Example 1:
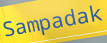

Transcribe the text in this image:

Sampadak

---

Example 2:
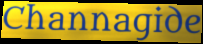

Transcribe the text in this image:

Channagide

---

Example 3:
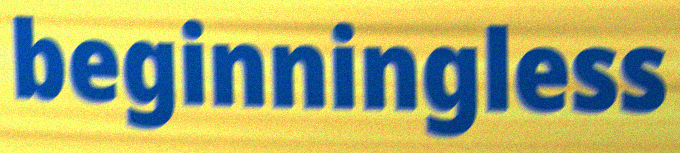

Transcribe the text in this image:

beginningless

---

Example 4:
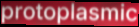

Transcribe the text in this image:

protoplasmic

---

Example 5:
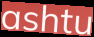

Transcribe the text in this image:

ashtu